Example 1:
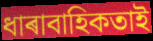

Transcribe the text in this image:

ধাৰাবাহিকতাই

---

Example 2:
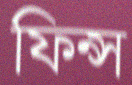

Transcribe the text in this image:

ফিন্স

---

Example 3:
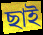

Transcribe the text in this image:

ছাই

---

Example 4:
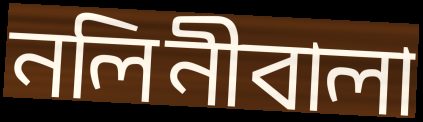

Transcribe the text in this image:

নলিনীবালা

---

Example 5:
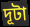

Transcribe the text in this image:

দূটা